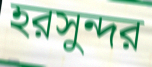
হরসুন্দর